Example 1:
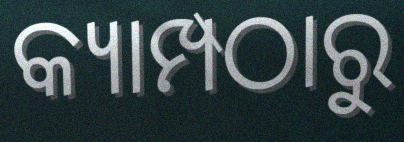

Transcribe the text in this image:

କ୍ୟାମ୍ପଠାରୁ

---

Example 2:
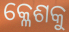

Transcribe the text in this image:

କ୍ଳେଶକୁ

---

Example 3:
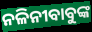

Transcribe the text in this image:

ନଳିନୀବାବୁଙ୍କ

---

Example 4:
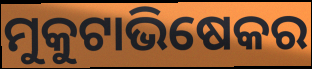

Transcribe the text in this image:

ମୁକୁଟାଭିଷେକର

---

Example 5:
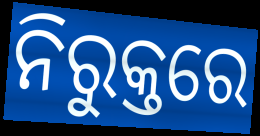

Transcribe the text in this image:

ନିରୁକ୍ତରେ